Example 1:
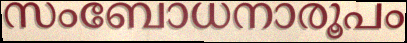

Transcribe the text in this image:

സംബോധനാരൂപം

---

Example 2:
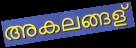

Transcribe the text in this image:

അകലങ്ങള്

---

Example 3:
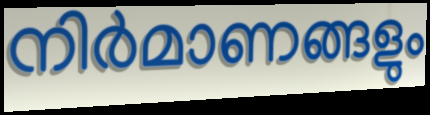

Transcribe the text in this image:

നിർമാണങ്ങളും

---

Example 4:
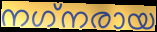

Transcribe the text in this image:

നഗ്‌നരായ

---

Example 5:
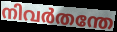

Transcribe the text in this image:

നിവർതന്തേ